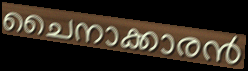
ചൈനാക്കാരൻ